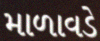
માળાવડે